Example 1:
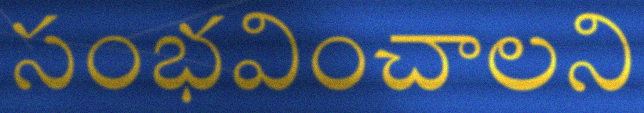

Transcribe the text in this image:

సంభవించాలని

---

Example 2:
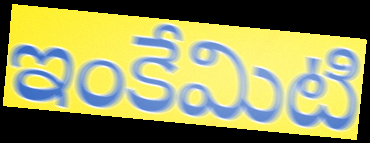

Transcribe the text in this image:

ఇంకేమిటి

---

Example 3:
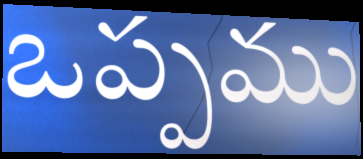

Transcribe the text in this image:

ఒప్పము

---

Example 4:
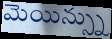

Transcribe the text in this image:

మెయిన్స్ను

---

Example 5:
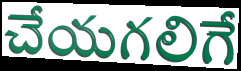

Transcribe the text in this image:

చేయగలిగే